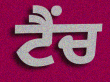
ਟੈਂਚ